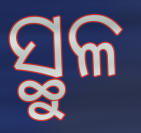
ସ୍ଥୁଳ